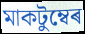
মাকটুম্বেৰ